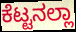
ಕೆಟ್ಟನಲ್ಲಾ